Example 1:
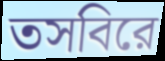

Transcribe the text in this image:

তসবিরে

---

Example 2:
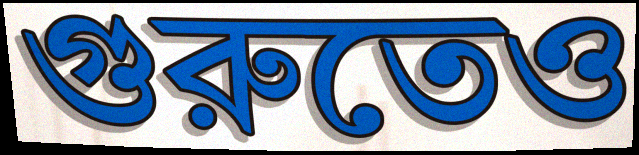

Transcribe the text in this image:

গুরুতেও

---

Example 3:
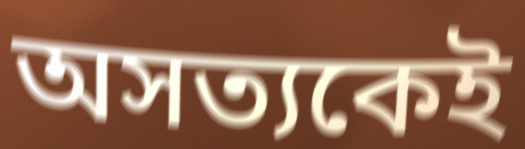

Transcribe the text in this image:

অসত্যকেই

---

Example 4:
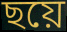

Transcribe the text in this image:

ছয়ে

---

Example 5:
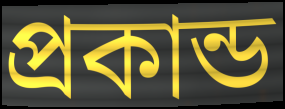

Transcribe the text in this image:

প্রকান্ড